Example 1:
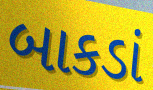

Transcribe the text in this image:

બાકડાં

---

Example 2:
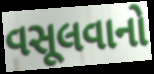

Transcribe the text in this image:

વસૂલવાનો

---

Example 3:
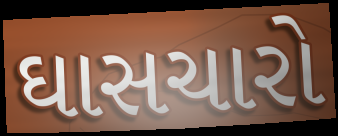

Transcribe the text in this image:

ઘાસચારો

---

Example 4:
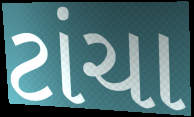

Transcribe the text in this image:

ટાંચા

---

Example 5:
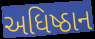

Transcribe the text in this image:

અધિષ્ઠાન